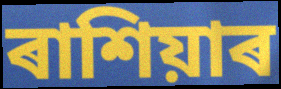
ৰাশিয়াৰ